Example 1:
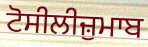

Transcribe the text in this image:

ਟੋਸੀਲੀਜ਼ੁਮਾਬ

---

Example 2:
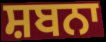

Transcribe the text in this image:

ਸ਼ਬਨਾ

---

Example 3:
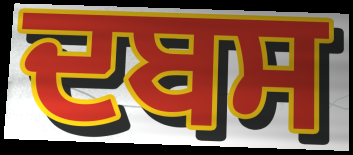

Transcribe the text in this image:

ਦਬਸ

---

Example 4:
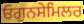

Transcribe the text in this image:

ਓਗੁਨਸੇਮਿਲਰ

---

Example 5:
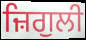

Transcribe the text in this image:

ਜ਼ਿਗੁਲੀ